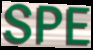
SPE